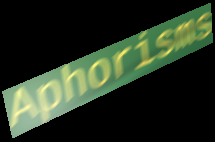
Aphorisms